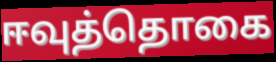
ஈவுத்தொகை